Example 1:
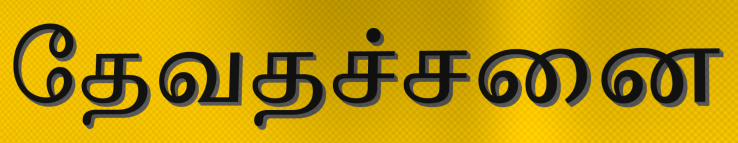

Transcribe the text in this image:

தேவதச்சனை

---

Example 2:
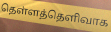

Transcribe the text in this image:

தெள்ளத்தெளிவாக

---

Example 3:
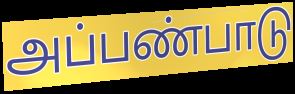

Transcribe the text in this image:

அப்பண்பாடு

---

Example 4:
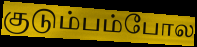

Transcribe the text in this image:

குடும்பம்போல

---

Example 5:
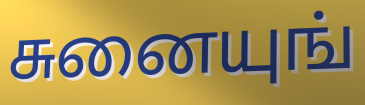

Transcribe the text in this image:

சுனையுங்